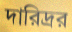
দারিদ্রর